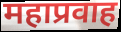
महाप्रवाह